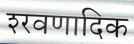
श्रवणादिक